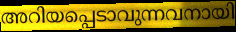
അറിയപ്പെടാവുന്നവനായി